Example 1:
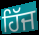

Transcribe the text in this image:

ਹਿੱਜ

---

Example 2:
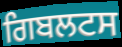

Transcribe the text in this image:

ਗਿਬਲਟਸ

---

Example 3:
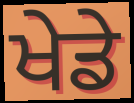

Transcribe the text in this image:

ਖੇਡੇ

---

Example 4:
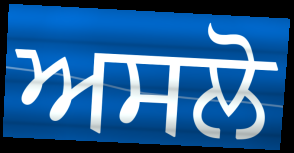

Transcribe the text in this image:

ਅਸਲੋ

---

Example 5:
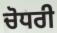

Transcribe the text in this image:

ਚੋਧਰੀ